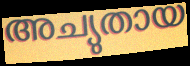
അച്യുതായ